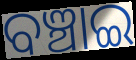
ବଞ୍ଚାଇ